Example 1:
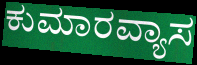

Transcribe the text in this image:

ಕುಮಾರವ್ಯಾಸ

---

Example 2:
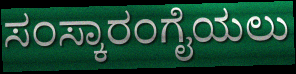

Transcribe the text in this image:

ಸಂಸ್ಕಾರಂಗೈಯಲು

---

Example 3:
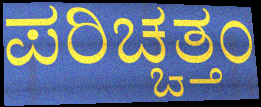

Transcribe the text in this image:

ಪರಿಚ್ಚತ್ತಂ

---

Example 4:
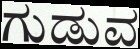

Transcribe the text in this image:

ಗುಡುವ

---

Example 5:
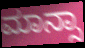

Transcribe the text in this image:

ಮಾನ್ಸಾ